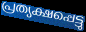
പ്രത്യക്ഷപ്പെട്ടു